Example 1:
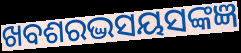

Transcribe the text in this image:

ଖବଶରଦ୍ଭସୟସଙ୍କଜ୍ଞ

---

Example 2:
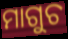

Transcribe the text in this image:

ମାଗୁଚ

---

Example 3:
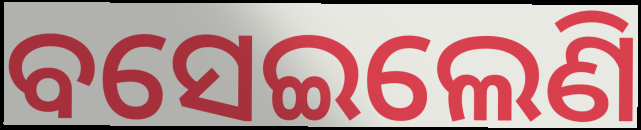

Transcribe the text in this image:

ବସେଇଲେଣି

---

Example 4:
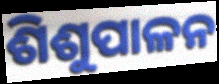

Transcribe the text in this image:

ଶିଶୁପାଳନ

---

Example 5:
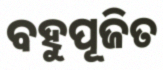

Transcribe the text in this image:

ବହୁପୂଜିତ